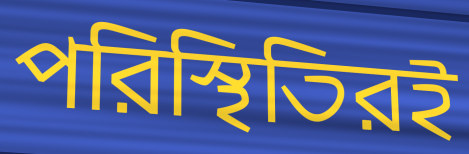
পরিস্থিতিরই